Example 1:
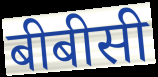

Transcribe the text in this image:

बीबीसी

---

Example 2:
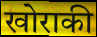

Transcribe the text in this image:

खोराकी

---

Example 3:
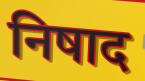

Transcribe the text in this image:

निषाद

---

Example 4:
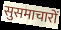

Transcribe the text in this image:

सुसमाचारों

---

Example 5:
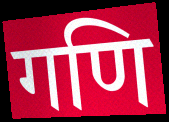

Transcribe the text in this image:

गणि